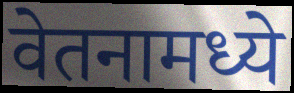
वेतनामध्ये